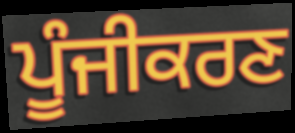
ਪੂੰਜੀਕਰਣ